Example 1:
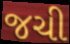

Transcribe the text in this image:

જચી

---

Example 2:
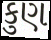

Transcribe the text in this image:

કુણ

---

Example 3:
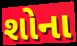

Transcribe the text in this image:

શોના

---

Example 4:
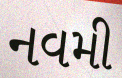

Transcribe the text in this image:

નવમી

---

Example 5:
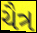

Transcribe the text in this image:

ચૈત્ર